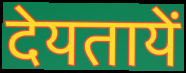
देयतायें